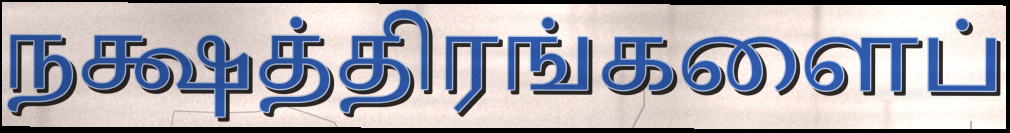
நக்ஷத்திரங்களைப்